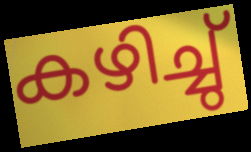
കഴിച്ചു്